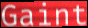
Gaint